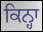
ਕਿਨ੍ਹਾ